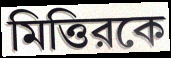
মিত্তিরকে